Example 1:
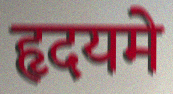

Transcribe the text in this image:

हृदयमे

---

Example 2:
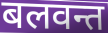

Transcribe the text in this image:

बलवन्त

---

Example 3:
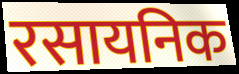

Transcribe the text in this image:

रसायनिक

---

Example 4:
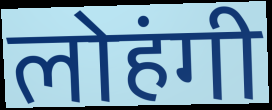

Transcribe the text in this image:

लोहंगी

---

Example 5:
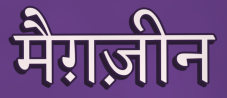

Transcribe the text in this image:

मैग़ज़ीन